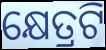
କ୍ଷେତ୍ରଟି